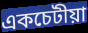
একচেটীয়া